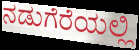
ನಡುಗೆರೆಯಲ್ಲಿ